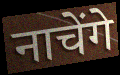
नाचेंगे